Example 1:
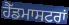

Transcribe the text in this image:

ਹੈੱਡਮਾਸਟਰਾਂ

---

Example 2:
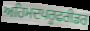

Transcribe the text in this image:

ਅਹਿਮਦਪਰੂਫਰੀਡਰ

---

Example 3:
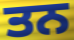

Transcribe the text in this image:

ਤਨ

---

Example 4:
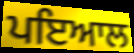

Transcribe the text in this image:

ਪਇਆਲ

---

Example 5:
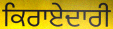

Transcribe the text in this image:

ਕਿਰਾਏਦਾਰੀ